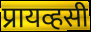
प्रायव्हसी